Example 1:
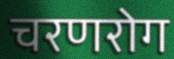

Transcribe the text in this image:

चरणरोग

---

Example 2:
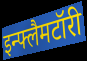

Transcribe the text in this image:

इन्फ्लैमटॉरी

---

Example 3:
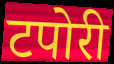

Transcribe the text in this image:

टपोरी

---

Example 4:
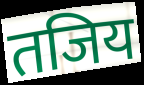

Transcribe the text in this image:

तजिय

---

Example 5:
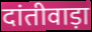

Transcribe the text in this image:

दांतीवाड़ा